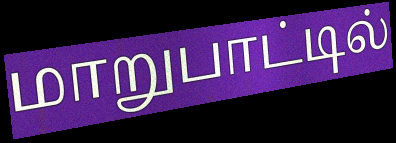
மாறுபாட்டில்